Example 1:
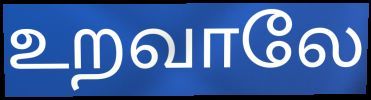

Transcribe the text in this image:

உறவாலே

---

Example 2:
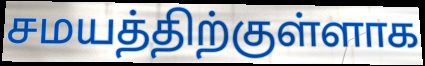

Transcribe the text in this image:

சமயத்திற்குள்ளாக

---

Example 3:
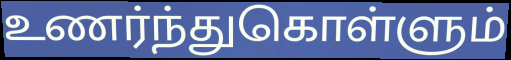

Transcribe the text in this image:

உணர்ந்துகொள்ளும்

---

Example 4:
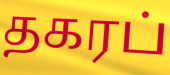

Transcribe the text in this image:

தகரப்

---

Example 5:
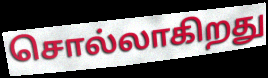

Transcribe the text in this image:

சொல்லாகிறது